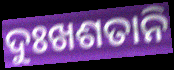
ଦୁଃଖଶତାନି